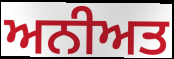
ਅਨੀਅਤ